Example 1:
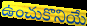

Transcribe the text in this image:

ఉంచుకొనియే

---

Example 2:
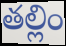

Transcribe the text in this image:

తల్లిం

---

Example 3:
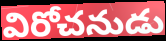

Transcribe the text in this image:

విరోచనుడు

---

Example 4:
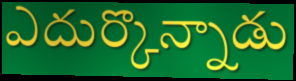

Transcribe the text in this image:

ఎదుర్కొన్నాడు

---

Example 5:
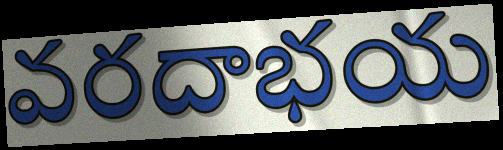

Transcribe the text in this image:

వరదాభయ